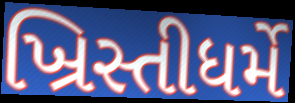
ખ્રિસ્તીધર્મે